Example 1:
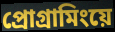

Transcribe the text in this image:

প্রোগ্রামিংয়ে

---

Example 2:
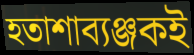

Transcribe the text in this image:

হতাশাব্যঞ্জকই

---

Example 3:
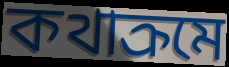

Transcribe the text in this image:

কথাক্রমে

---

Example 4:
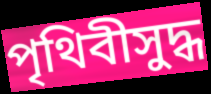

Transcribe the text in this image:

পৃথিবীসুদ্ধ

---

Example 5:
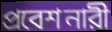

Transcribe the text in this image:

প্রবেশনারী